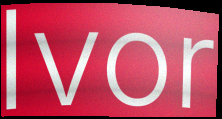
Ivor